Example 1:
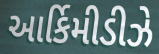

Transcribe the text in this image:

આર્કિમીડીઝે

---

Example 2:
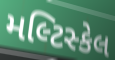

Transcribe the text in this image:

મલ્ટિસ્કેલ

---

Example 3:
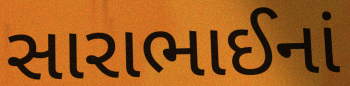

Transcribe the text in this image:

સારાભાઈનાં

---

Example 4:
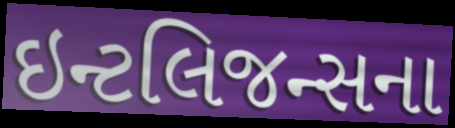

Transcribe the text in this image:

ઇન્ટલિજન્સના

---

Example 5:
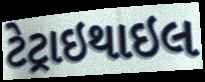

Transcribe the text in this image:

ટેટ્રાઇથાઇલ